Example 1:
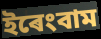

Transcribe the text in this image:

ইৰেংবাম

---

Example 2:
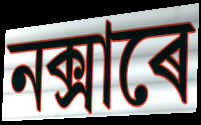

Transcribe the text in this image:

নক্সাৰে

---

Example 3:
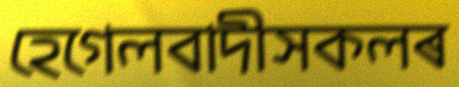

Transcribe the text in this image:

হেগেলবাদীসকলৰ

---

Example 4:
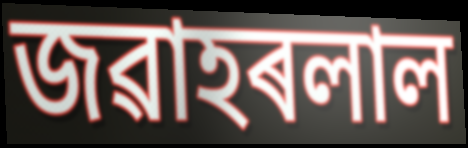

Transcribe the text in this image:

জৱাহৰলাল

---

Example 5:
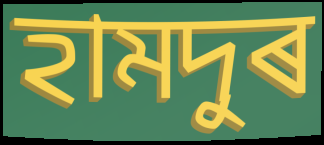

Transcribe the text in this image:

হামদুৰ